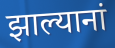
झाल्यानां